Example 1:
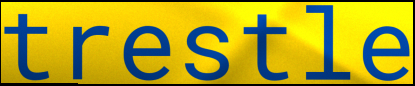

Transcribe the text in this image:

trestle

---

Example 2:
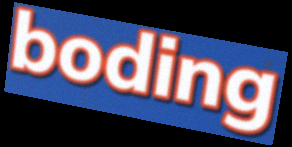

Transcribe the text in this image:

boding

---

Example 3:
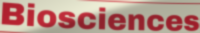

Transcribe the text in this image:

Biosciences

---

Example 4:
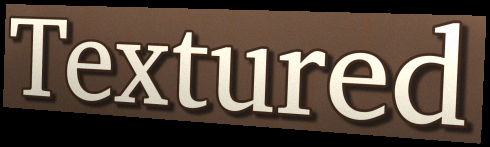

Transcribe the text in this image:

Textured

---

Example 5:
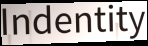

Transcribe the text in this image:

Indentity